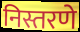
निस्तरणे